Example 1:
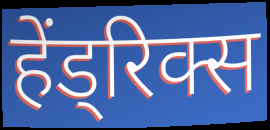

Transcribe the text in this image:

हेंड्रिक्स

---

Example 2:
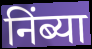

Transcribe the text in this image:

निंब्या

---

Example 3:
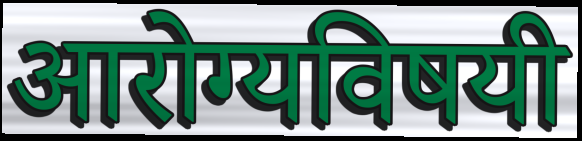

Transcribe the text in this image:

आरोग्यविषयी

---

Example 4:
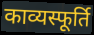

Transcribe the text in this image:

काव्यस्फूर्ति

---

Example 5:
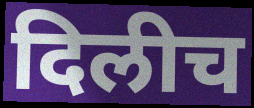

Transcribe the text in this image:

दिलीच